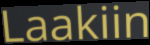
Laakiin